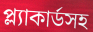
প্ল্যাকার্ডসহ